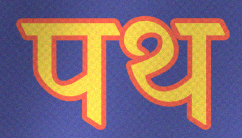
पथ